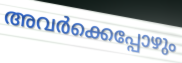
അവർക്കെപ്പോഴും